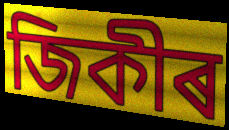
জিকীৰ